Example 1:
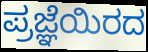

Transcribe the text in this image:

ಪ್ರಜ್ಞೆಯಿರದ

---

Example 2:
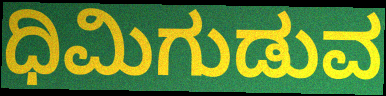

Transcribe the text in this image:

ಧಿಮಿಗುಡುವ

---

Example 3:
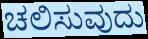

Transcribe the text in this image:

ಚಲಿಸುವುದು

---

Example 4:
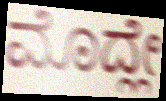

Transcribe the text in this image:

ಮೊದ್ಲೇ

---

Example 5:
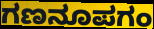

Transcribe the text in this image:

ಗಣನೂಪಗಂ